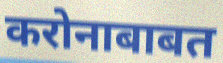
करोनाबाबत